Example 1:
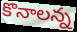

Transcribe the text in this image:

కొనాలన్న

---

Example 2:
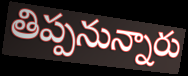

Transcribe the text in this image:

తిప్పనున్నారు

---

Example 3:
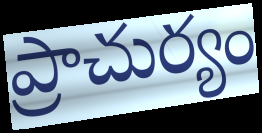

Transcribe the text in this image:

ప్రాచుర్యం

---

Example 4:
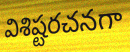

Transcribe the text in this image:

విశిష్టరచనగా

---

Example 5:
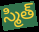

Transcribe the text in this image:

స్మిత్